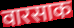
वारसाक